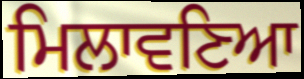
ਮਿਲਾਵਣਿਆ